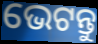
ଭେଟନ୍ତୁ